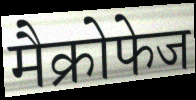
मैक्रोफेज